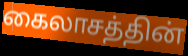
கைலாசத்தின்